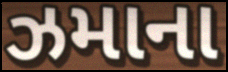
ઝમાના